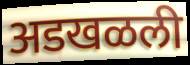
अडखळली